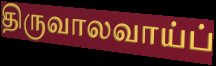
திருவாலவாய்ப்